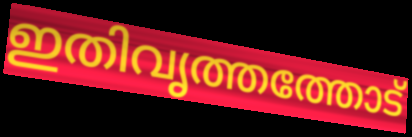
ഇതിവൃത്തത്തോട്